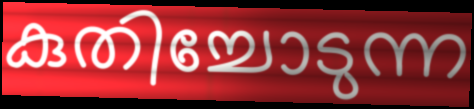
കുതിച്ചോടുന്ന